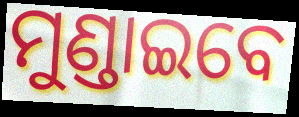
ମୁଣ୍ଡାଇବେ